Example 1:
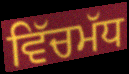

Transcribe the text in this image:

ਵਿੱਚਮੱਧ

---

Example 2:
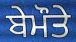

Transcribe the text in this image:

ਬੇਮੌਤੇ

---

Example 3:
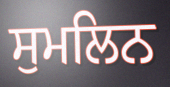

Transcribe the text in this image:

ਸੁਮਲਿਨ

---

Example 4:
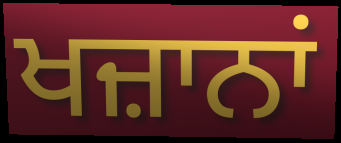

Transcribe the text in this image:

ਖਜ਼ਾਨਾਂ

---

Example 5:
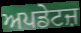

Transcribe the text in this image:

ਅਪਡੇਟਜ਼